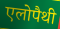
एलोपैथी